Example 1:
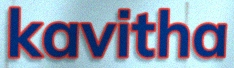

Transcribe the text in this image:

kavitha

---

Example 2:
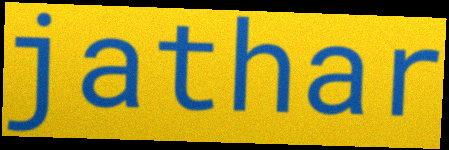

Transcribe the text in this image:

jathar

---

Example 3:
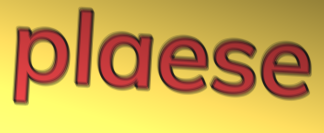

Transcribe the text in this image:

plaese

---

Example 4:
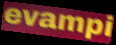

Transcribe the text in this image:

evampi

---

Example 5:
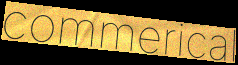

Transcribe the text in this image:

commerical